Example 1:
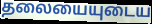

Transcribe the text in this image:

தலையையுடைய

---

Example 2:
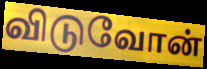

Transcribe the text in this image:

விடுவோன்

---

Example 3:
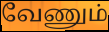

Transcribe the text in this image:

வேணும்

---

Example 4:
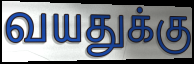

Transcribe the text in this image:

வயதுக்கு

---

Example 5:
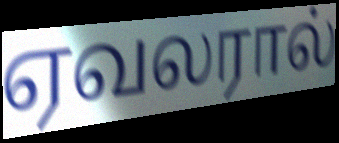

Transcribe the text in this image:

ஏவலரால்